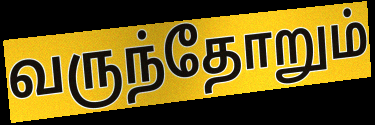
வருந்தோறும்